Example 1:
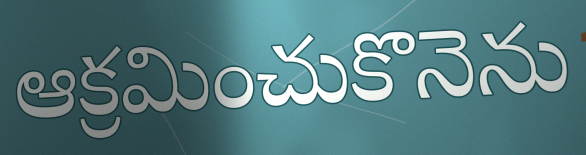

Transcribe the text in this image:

ఆక్రమించుకొనెను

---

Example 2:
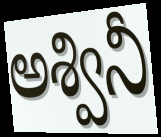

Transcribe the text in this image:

అశ్వినీ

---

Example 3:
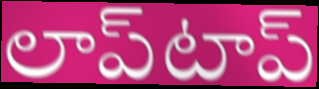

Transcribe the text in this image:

లాప్‌టాప్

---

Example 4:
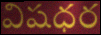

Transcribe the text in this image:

విషధర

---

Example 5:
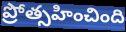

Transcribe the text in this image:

ప్రోత్సహించింది